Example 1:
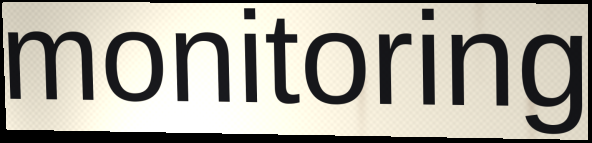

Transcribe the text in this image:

monitoring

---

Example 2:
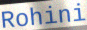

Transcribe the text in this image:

Rohini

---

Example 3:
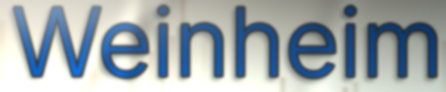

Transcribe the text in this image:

Weinheim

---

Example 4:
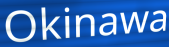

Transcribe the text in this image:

Okinawa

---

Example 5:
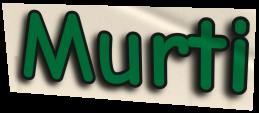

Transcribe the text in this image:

Murti